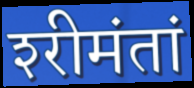
श्रीमंतां